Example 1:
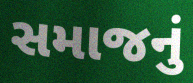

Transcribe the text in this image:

સમાજનું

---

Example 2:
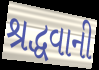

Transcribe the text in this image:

શ્રદ્ધવાની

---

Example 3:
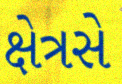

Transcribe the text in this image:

ક્ષેત્રસે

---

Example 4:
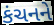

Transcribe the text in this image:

કંચનને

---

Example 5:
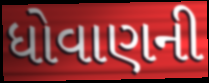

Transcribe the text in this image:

ધોવાણની